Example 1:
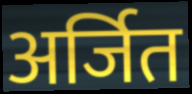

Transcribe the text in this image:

अर्जित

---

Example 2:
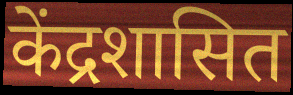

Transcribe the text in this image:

केंद्रशासित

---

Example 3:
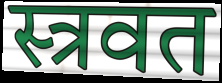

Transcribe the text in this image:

स्त्रवत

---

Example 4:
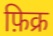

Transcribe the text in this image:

फ़िक्र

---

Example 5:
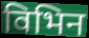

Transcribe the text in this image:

विभिन